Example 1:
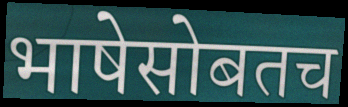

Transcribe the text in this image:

भाषेसोबतच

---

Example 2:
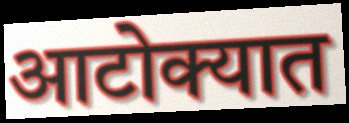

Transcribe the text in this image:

आटोक्‍यात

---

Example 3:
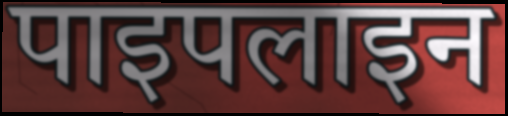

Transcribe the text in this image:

पाइपलाइन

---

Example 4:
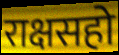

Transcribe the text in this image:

राक्षसहो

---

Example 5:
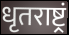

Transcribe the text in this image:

धृतराष्ट्रं